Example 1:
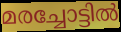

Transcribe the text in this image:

മരച്ചോട്ടിൽ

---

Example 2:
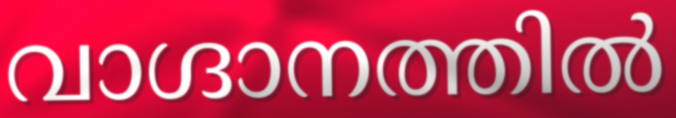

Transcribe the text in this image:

വാഗ്ദാനത്തിൽ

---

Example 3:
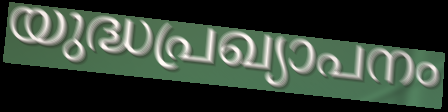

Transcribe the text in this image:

യുദ്ധപ്രഖ്യാപനം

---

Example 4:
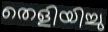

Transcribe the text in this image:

തെളിയിച്ചു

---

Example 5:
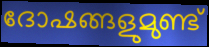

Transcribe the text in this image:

ദോഷങ്ങളുമുണ്ട്